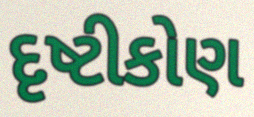
દૃષ્ટીકોણ